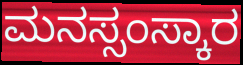
ಮನಸ್ಸಂಸ್ಕಾರ